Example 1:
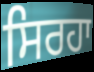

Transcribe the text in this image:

ਸਿਰਹਾ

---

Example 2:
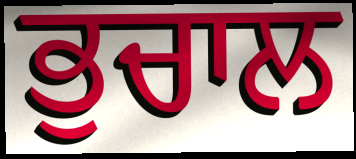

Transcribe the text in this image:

ਭੁਚਾਲ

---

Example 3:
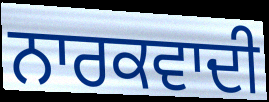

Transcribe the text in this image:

ਨਾਰਕਵਾਦੀ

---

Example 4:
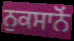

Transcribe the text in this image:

ਨੁਕਸਾਨੋਂ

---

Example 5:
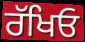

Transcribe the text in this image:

ਰੱਖਿਓ